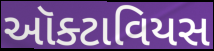
ઑક્ટાવિયસ